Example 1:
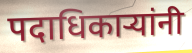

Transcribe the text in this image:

पदाधिकाऱ्यांनी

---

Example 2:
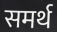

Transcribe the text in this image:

समर्थ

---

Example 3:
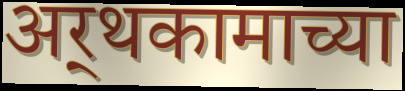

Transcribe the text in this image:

अर्थकामाच्या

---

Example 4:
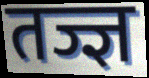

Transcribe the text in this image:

तज्ज्ञ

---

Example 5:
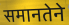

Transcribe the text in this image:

समानतेने